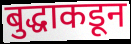
बुद्धाकडून